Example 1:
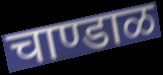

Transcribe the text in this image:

चाण्डाळ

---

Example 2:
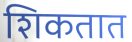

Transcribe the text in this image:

शिकतात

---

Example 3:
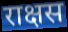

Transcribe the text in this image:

राक्षस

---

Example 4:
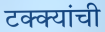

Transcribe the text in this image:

टक्क्यांची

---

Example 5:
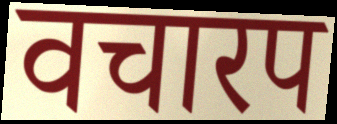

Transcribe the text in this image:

वचारप